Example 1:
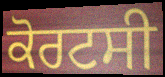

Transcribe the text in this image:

ਕੋਰਟਸੀ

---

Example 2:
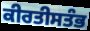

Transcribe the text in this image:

ਕੀਰਤੀਸਤੰਭ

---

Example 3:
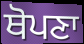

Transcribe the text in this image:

ਥੋਪਣਾ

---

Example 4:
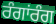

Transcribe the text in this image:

ਰੰਗਾਂਰੰਗ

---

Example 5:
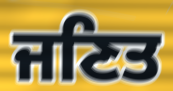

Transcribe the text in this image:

ਜਣਿਤ